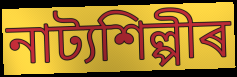
নাট্যশিল্পীৰ